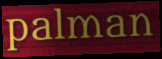
palman